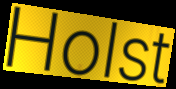
Holst